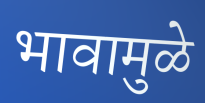
भावामुळे